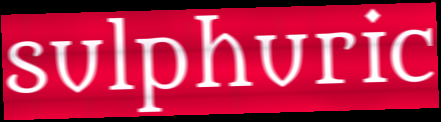
sulphuric